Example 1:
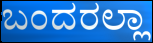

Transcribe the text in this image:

ಬಂದರಲ್ಲಾ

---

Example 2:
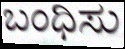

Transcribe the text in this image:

ಬಂಧಿಸು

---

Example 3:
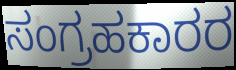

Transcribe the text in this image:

ಸಂಗ್ರಹಕಾರರ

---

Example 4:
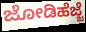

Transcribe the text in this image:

ಜೋಡಿಹೆಜ್ಜೆ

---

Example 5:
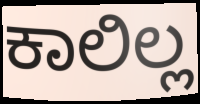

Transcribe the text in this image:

ಕಾಲಿಲ್ಲ